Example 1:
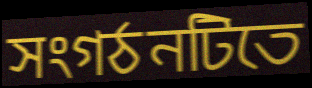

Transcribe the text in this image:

সংগঠনটিতে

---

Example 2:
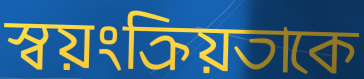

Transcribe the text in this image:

স্বয়ংক্রিয়তাকে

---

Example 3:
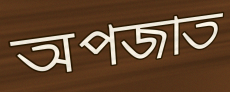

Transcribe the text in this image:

অপজাত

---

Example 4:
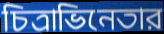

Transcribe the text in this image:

চিত্রাভিনেতার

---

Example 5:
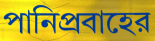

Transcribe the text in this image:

পানিপ্রবাহের